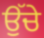
ਉੱਚੇ